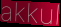
akkul